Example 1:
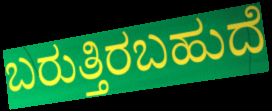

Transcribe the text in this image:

ಬರುತ್ತಿರಬಹುದೆ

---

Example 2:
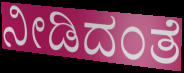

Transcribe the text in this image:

ನೀಡಿದಂತೆ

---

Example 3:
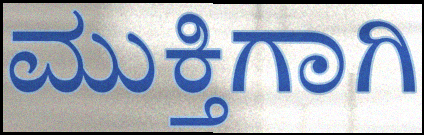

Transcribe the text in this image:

ಮುಕ್ತಿಗಾಗಿ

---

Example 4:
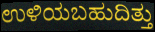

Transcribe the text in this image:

ಉಳಿಯಬಹುದಿತ್ತು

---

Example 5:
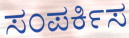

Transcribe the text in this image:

ಸಂಪರ್ಕಿಸ